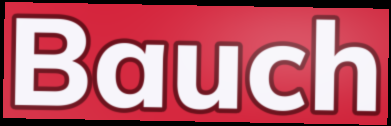
Bauch